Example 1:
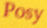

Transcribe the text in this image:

Posy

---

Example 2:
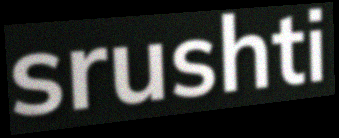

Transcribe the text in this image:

srushti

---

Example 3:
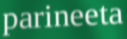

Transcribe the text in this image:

parineeta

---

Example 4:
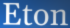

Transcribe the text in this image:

Eton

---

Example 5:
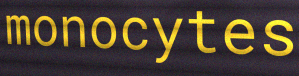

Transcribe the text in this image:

monocytes